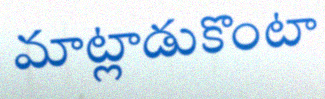
మాట్లాడుకొంటా